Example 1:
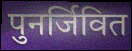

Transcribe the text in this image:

पुनर्जिवित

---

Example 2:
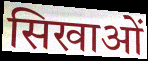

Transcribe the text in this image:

सिखाओं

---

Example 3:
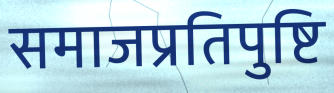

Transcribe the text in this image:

समाजप्रतिपुष्टि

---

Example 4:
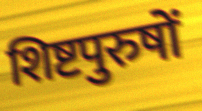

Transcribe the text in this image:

शिष्टपुरुषों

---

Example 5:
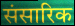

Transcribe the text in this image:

संसारिक